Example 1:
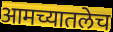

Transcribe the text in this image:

आमच्यातलेच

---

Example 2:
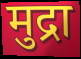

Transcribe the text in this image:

मुद्रा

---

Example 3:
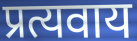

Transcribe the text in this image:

प्रत्यवाय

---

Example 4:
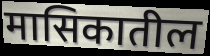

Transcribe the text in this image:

मासिकातील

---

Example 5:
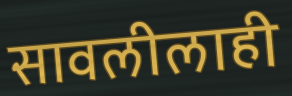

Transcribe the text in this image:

सावलीलाही